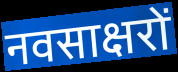
नवसाक्षरों